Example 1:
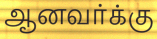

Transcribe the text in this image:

ஆனவர்க்கு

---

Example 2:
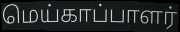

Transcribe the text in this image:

மெய்காப்பாளர்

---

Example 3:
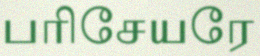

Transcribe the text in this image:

பரிசேயரே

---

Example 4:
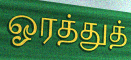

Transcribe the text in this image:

ஓரத்துத்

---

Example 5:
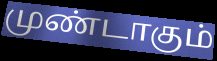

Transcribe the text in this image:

முண்டாகும்